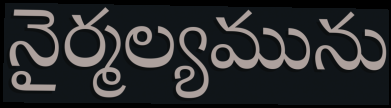
నైర్మల్యమును